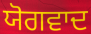
ਯੋਗਵਾਦ